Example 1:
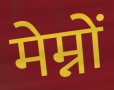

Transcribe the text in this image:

मेम्नों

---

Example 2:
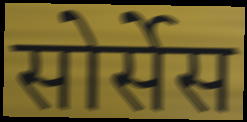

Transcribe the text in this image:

सोर्सेस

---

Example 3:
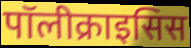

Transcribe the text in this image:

पॉलीक्राइसिस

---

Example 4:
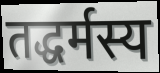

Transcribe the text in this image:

तद्धर्मस्य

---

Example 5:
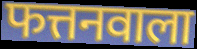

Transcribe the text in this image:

फत्तनवाला